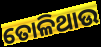
ତୋଳିଥାଉ